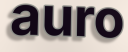
auro